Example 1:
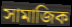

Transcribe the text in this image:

সামাজিক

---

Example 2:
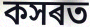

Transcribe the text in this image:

কসৰত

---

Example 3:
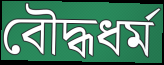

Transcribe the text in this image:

বৌদ্ধধৰ্ম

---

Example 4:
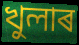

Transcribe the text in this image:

খুলাৰ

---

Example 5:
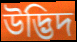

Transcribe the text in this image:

উদ্ভিদ